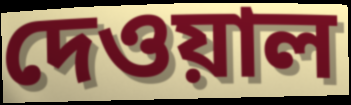
দেওয়াল